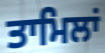
ਤਾਮਿਲਾਂ